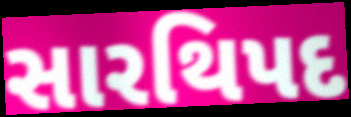
સારથિપદ